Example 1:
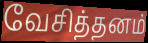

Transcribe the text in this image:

வேசித்தனம்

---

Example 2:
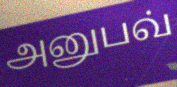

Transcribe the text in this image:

அனுபவ்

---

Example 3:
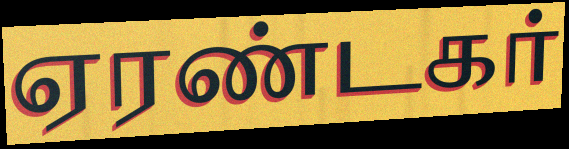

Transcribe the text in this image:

ஏரண்டகர்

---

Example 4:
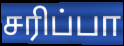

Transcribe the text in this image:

சரிப்பா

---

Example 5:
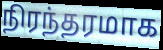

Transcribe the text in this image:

நிரந்தரமாக